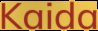
Kaida